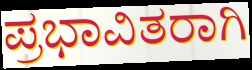
ಪ್ರಭಾವಿತರಾಗಿ